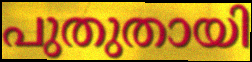
പുതുതായി